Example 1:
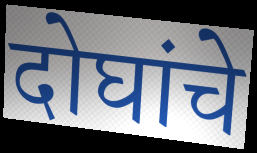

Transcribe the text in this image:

दोघांचे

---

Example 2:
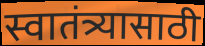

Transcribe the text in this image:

स्वातंत्र्यासाठी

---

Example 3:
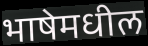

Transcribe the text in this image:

भाषेमधील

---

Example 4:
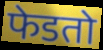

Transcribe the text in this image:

फेडतो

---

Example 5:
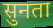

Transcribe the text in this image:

सुनता